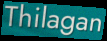
Thilagan